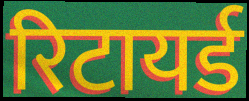
रिटायर्ड